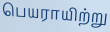
பெயராயிற்று